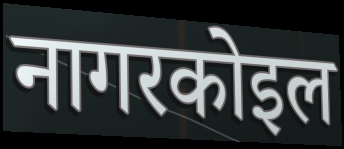
नागरकोइल